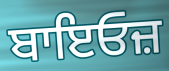
ਬਾਇਓਜ਼